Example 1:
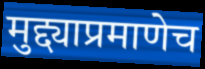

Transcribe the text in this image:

मुद्द्याप्रमाणेच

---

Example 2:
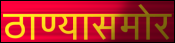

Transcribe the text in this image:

ठाण्यासमोर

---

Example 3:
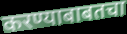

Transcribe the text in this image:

करण्याबाबतचा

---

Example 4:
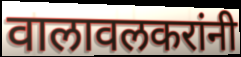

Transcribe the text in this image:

वालावलकरांनी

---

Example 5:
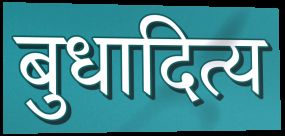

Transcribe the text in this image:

बुधादित्य